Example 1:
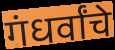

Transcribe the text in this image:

गंधर्वांचे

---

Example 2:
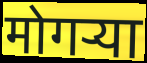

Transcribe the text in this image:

मोगऱ्या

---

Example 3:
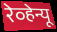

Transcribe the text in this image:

रेव्हेन्यू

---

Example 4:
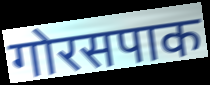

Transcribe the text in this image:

गोरसपाक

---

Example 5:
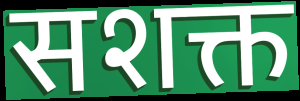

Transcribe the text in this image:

सशक्त